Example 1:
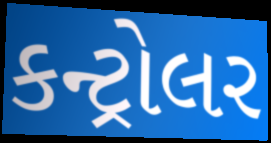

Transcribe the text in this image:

કન્ટ્રોલર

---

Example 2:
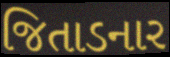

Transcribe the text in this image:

જિતાડનાર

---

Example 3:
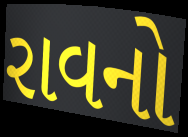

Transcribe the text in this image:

રાવનો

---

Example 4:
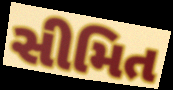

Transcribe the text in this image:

સીમિત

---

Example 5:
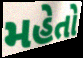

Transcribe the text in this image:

મહેતો